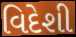
વિદેશી